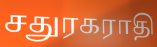
சதுரகராதி